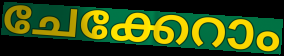
ചേക്കേറാം